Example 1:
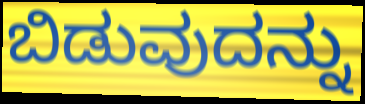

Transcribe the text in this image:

ಬಿಡುವುದನ್ನು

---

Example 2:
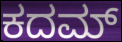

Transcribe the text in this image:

ಕದಮ್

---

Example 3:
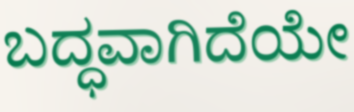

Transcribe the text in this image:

ಬದ್ಧವಾಗಿದೆಯೇ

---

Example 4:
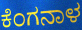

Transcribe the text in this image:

ಕೆಂಗನಾಳ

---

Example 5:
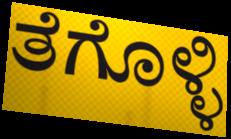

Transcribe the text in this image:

ತೆಗೊಳ್ಳಿ